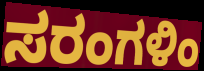
ಸರಂಗಳಿಂ